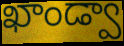
ఖాండ్వా